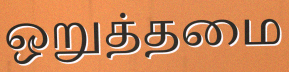
ஒறுத்தமை